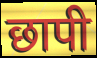
छापी